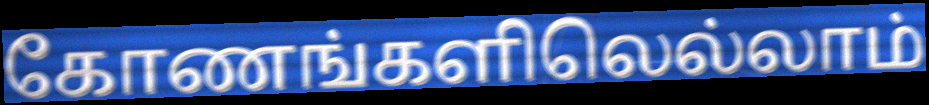
கோணங்களிலெல்லாம்